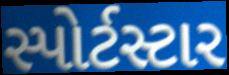
સ્પોર્ટસ્ટાર